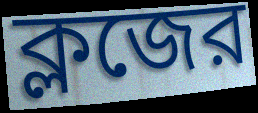
ক্লজের